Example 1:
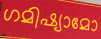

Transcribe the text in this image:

ഗമിഷ്യാമോ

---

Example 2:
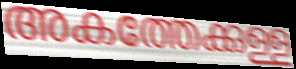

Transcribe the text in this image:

അകത്തേക്കുള്ള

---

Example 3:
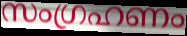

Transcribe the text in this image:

സംഗ്രഹണം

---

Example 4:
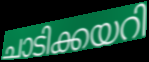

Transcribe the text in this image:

ചാടിക്കയറി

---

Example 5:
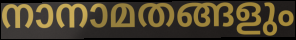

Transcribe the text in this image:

നാനാമതങ്ങളും